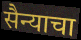
सैन्याचा